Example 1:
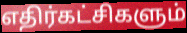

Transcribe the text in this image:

எதிர்கட்சிகளும்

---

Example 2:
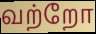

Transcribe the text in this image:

வற்றோ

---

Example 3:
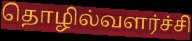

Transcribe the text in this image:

தொழில்வளர்ச்சி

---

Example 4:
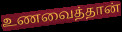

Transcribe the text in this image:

உணவைத்தான்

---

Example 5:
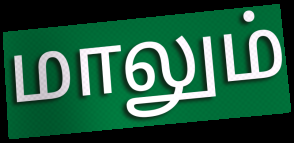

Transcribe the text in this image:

மாலும்